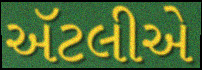
ઍટલીએ